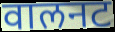
वालनट